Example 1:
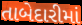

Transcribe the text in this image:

તાબેદારીમાં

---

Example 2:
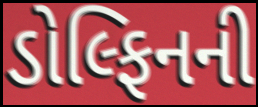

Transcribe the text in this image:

ડોલ્ફિનની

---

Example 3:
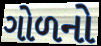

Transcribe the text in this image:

ગોળનો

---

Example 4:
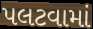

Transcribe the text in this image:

પલટવામાં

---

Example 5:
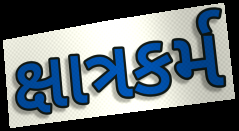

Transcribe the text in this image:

ક્ષાત્રકર્મ